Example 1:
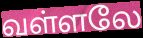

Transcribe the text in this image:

வள்ளலே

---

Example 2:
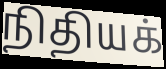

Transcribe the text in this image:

நிதியக்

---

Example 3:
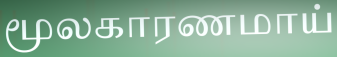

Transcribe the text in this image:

மூலகாரணமாய்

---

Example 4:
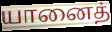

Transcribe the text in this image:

யானைத்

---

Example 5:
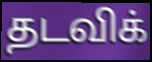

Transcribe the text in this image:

தடவிக்